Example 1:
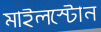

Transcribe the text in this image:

মাইলস্টোন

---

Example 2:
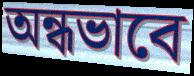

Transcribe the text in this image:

অন্ধভাবে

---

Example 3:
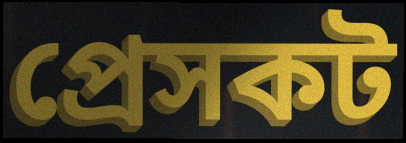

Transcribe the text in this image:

প্রেসকট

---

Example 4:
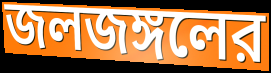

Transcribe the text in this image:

জলজঙ্গলের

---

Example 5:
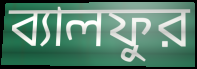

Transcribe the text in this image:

ব্যালফুর